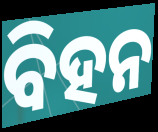
ବିହନ